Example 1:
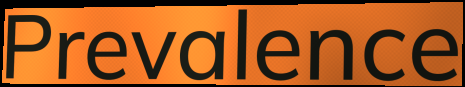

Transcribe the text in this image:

Prevalence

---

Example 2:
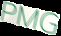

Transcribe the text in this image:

PMG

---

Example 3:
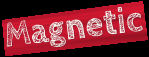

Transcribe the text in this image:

Magnetic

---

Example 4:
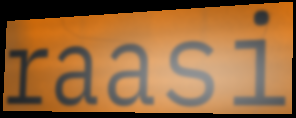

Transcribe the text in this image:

raasi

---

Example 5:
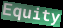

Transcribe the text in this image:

Equity